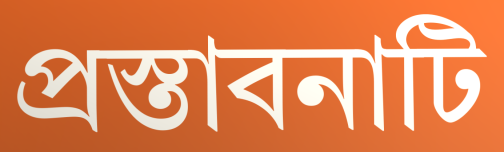
প্রস্তাবনাটি